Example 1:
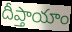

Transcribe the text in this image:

దీప్తాయాం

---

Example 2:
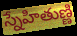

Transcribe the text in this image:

స్నేహితుణ్ణి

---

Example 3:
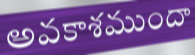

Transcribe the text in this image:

అవకాశముందా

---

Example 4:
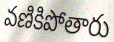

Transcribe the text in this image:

వణికిపోతారు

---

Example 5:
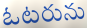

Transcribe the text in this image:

ఓటరును